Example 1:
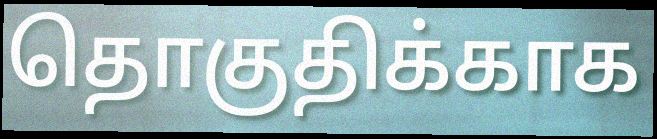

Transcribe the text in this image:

தொகுதிக்காக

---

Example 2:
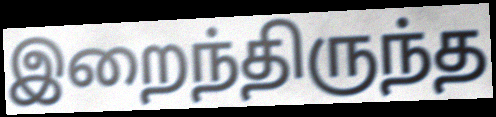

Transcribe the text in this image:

இறைந்திருந்த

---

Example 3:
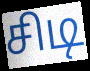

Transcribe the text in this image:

சிடி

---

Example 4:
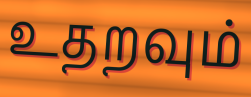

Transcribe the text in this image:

உதறவும்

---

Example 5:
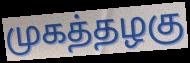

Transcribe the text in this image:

முகத்தழகு